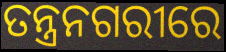
ତନ୍ତ୍ରନଗରୀରେ